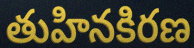
తుహినకిరణ